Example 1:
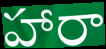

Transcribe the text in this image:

హారా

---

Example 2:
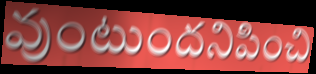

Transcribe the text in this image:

వుంటుందనిపించి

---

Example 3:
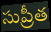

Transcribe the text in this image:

సుప్రీత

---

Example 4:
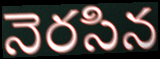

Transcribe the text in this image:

నెరసిన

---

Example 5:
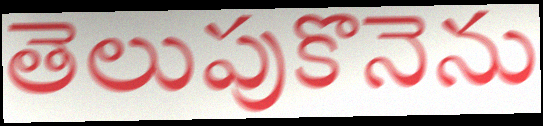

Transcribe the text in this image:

తెలుపుకొనెను